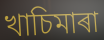
খাচিমাৰা